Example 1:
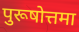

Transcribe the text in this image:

पुरूषोत्तमा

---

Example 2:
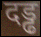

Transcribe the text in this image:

दड्ढ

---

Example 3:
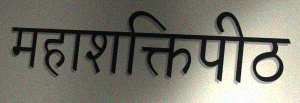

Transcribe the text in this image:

महाशक्तिपीठ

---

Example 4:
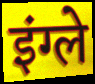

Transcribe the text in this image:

इंग्ले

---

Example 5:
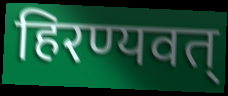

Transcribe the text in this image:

हिरण्यवत्